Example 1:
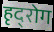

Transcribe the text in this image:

हृद्‍रोग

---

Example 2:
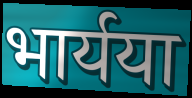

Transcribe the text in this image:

भार्यया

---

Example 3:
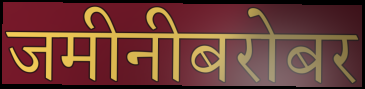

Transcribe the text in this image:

जमीनीबरोबर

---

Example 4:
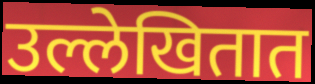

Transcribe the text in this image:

उल्लेखितात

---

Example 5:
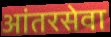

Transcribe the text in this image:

आंतरसेवा